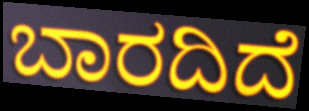
ಬಾರದಿದೆ